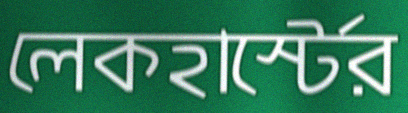
লেকহার্স্টের